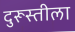
दुरूस्तीला